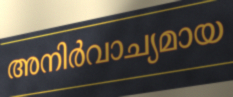
അനിർവാച്യമായ